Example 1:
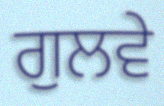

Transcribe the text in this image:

ਗੁਲਵੇ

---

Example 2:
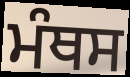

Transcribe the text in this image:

ਮੰਥਸ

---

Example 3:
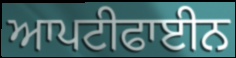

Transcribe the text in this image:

ਆਪਟੀਫਾਈਨ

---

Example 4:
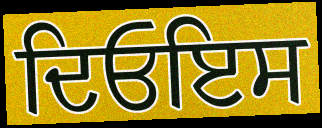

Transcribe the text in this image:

ਦਿਓਇਸ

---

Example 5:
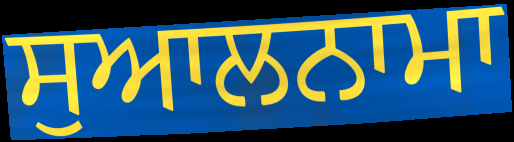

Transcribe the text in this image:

ਸੁਆਲਨਾਮਾ